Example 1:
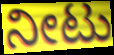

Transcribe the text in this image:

ನೀಟು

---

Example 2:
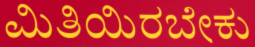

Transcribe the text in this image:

ಮಿತಿಯಿರಬೇಕು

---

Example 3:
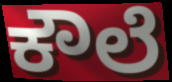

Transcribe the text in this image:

ಕೌಲೆ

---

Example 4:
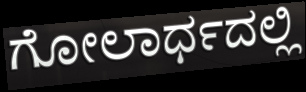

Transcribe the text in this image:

ಗೋಲಾರ್ಧದಲ್ಲಿ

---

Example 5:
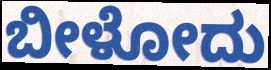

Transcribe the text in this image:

ಬೀಳೋದು